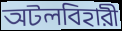
অটলবিহারী